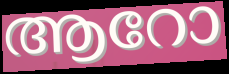
ആറോ